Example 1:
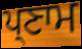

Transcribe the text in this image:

ਪ੍ਣਾਮ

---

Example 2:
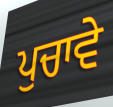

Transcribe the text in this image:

ਪੁਚਾਵੇ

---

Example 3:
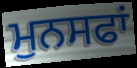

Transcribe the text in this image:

ਮੁਨਸਫਾਂ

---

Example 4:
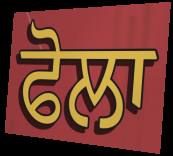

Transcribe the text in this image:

ਫੋਲਾ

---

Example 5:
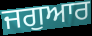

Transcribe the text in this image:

ਜਗੁਆਰ